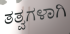
ತತ್ವಗಳಾಗಿ